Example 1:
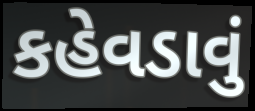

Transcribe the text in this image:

કહેવડાવું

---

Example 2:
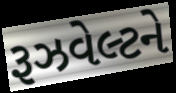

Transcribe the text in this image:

રૂઝવેલ્ટને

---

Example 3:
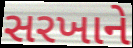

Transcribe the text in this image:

સરખાને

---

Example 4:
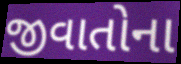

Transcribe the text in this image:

જીવાતોના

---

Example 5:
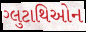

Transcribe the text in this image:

ગ્લુટાથિઓન